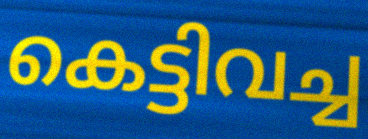
കെട്ടിവച്ച